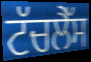
ਟੱਚਲੈੱਸ